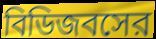
বিডিজবসের